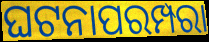
ଘଟନାପରମ୍ପରା